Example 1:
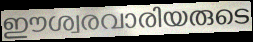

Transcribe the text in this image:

ഈശ്വരവാരിയരുടെ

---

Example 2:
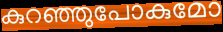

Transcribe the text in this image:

കുറഞ്ഞുപോകുമോ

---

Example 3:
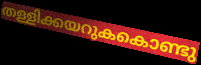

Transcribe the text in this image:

തള്ളിക്കയറുകകൊണ്ടു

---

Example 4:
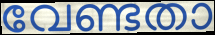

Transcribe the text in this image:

വേണ്ടതാ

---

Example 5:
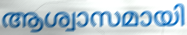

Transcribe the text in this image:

ആശ്വാസമായി